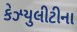
કેઝ્યુલીટીના